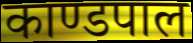
काण्डपाल